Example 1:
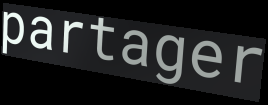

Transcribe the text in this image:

partager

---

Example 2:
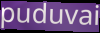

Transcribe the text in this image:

puduvai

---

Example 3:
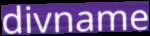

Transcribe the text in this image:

divname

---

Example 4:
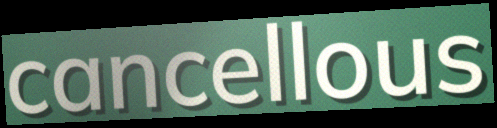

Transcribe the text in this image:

cancellous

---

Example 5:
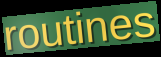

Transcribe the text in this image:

routines